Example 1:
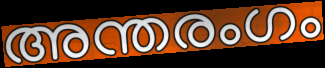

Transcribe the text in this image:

അന്തരംഗം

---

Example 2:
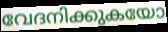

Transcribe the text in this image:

വേദനിക്കുകയോ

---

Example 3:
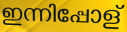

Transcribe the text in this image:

ഇന്നിപ്പോള്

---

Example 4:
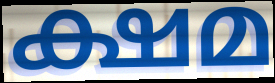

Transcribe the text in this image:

ക്ഷമ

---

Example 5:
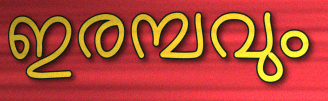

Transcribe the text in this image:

ഇരമ്പവും